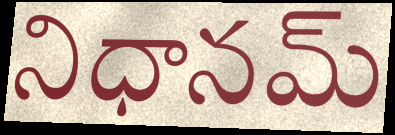
నిధానమ్